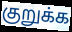
குறுக்க